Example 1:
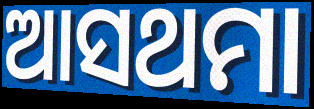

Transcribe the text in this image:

ଆସଥମା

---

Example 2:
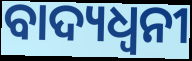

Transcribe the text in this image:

ବାଦ୍ୟଧ୍ୱନୀ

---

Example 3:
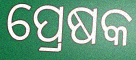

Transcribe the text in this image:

ପ୍ରେଷକ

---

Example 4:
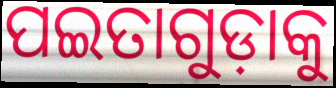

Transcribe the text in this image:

ପଇତାଗୁଡ଼ାକୁ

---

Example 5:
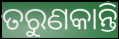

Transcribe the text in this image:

ତରୁଣକାନ୍ତି